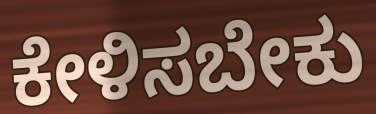
ಕೇಳಿಸಬೇಕು